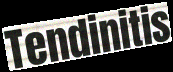
Tendinitis